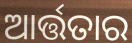
ଆର୍ତ୍ତତାର